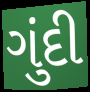
ગુંદી